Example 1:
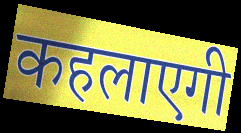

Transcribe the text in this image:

कहलाएगी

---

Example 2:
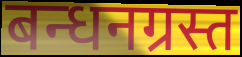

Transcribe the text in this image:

बन्धनग्रस्त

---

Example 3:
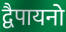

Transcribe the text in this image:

द्वैपायनो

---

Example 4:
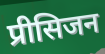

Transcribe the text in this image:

प्रीसिजन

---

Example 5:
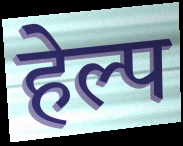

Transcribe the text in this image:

हेल्‍प